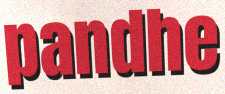
pandhe